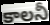
కాలనీ